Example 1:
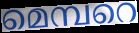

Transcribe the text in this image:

മെമ്പറെ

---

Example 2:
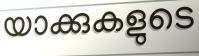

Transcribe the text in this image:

യാക്കുകളുടെ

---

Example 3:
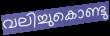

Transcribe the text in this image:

വലിച്ചുകൊണ്ടു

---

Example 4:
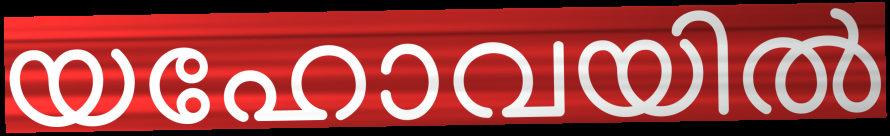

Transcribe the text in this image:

യഹോവയിൽ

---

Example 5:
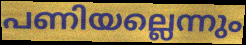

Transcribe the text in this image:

പണിയല്ലെന്നും